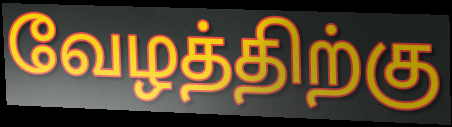
வேழத்திற்கு